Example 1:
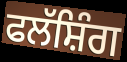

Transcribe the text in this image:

ਫਲੱਸ਼ਿੰਗ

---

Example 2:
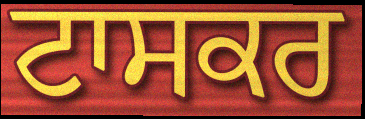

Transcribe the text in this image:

ਟਾਸਕਰ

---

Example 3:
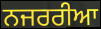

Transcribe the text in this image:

ਨਜਰਰੀਆ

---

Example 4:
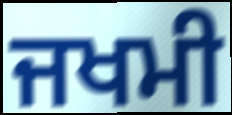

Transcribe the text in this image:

ਜਖਮੀ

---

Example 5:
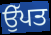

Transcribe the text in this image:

ਉੱਪਤ